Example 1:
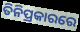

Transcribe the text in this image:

ତିନିପ୍ରକାରରେ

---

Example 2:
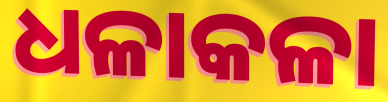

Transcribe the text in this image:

ଧଳାକଳା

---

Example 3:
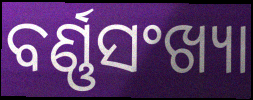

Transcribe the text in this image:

ବର୍ଣ୍ଣସଂଖ୍ୟା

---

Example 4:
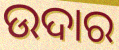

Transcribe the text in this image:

ଉଦାର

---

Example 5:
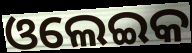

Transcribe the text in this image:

ଓଲେଇକ